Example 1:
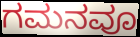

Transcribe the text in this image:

ಗಮನವೂ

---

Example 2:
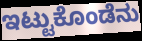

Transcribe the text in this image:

ಇಟ್ಟುಕೊಂಡೆನು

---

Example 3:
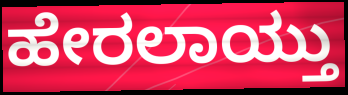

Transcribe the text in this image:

ಹೇರಲಾಯ್ತು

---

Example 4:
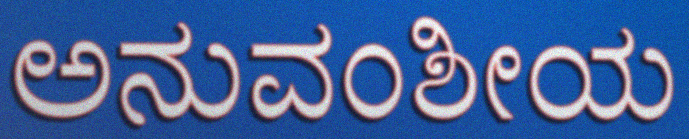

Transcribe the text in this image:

ಅನುವಂಶೀಯ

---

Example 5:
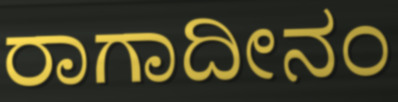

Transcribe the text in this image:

ರಾಗಾದೀನಂ